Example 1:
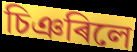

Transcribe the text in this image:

চিঞৰিলে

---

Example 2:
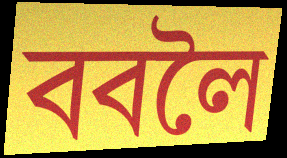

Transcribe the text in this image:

ববলৈ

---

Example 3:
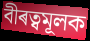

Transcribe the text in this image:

বীৰত্বমূলক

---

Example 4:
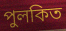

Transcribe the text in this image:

পুলকিত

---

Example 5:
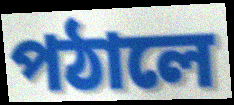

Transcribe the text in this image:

পঠালে